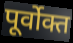
पूर्वोक्त